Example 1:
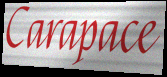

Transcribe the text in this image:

Carapace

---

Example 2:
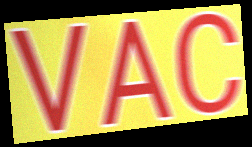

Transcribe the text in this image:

VAC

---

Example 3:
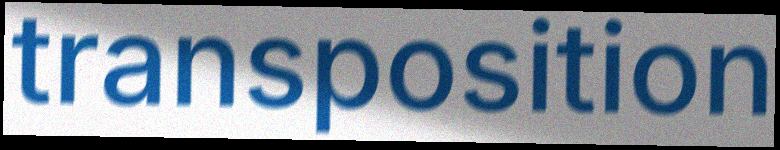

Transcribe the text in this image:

transposition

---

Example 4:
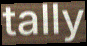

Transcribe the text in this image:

tally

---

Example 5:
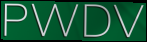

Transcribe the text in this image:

PWDV